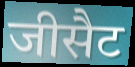
जीसैट